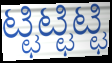
ಟ್ಟಿಟ್ಟಿಟ್ಟಿ